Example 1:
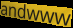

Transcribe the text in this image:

andwww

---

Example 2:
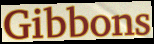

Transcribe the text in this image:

Gibbons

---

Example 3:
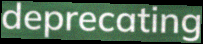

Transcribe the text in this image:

deprecating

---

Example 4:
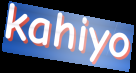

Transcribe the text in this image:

kahiyo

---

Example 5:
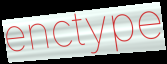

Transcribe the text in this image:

enctype